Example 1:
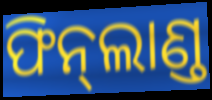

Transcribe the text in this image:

ଫିନ୍‌ଲାଣ୍ଡ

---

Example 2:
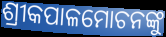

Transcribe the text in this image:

ଶ୍ରୀକପାଳମୋଚନଙ୍କୁ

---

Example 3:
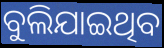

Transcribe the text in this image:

ବୁଲିଯାଇଥିବ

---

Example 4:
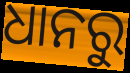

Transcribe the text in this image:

ଧାନରୁ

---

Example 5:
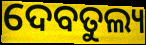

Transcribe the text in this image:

ଦେବତୁଲ୍ୟ